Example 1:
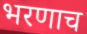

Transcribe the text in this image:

भरणाच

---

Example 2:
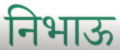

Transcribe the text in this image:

निभाऊ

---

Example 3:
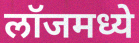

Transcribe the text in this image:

लॉजमध्ये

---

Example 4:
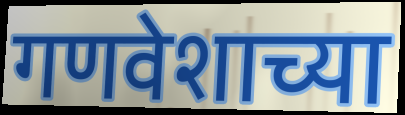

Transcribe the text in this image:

गणवेशाच्या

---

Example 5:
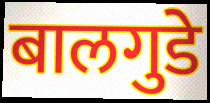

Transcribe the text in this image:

बालगुडे